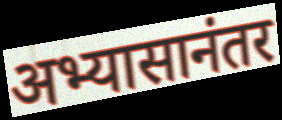
अभ्यासानंतर